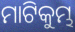
ମାଟିକୁମ୍ଭ